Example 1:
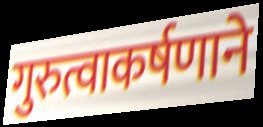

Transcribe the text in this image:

गुरुत्वाकर्षणाने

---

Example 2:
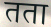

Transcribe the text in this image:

तता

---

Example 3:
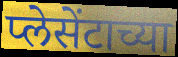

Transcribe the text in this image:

प्लेसेंटाच्या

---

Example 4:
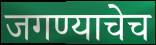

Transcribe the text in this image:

जगण्याचेच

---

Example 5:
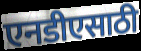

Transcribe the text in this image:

एनडीएसाठी